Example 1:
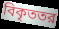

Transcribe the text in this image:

বিকৃততর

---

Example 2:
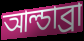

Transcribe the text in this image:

আল্ডাব্রা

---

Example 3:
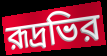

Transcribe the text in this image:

রূদ্রভির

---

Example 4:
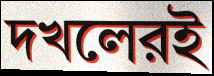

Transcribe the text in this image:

দখলেরই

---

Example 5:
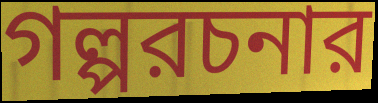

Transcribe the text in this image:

গল্পরচনার